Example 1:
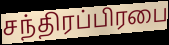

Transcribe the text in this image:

சந்திரப்பிரபை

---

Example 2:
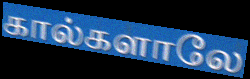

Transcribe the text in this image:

கால்களாலே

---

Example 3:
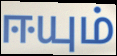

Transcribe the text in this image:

ஈயும்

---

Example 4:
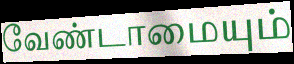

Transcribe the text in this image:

வேண்டாமையும்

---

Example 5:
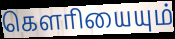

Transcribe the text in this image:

கௌரியையும்